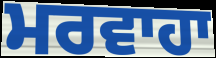
ਮਰਵਾਹਾ